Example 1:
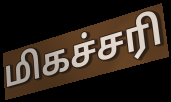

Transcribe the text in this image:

மிகச்சரி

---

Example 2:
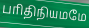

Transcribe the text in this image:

பரிதிநியமமே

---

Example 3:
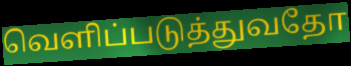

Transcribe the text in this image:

வெளிப்படுத்துவதோ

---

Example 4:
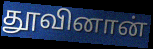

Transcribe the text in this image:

தூவினான்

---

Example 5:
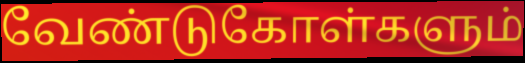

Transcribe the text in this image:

வேண்டுகோள்களும்